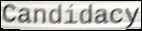
Candidacy